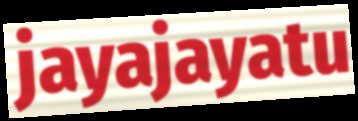
jayajayatu